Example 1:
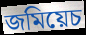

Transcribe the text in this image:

জমিয়েচ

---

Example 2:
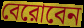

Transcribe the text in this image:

বেরোবেন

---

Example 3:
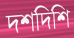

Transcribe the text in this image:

দশদিশি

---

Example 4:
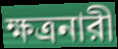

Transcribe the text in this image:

ক্ষত্রনারী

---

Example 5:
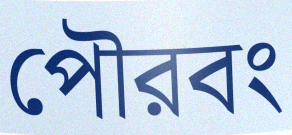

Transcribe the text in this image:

পৌরবং